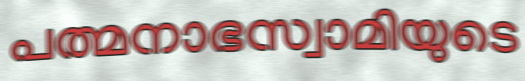
പത്മനാഭസ്വാമിയുടെ